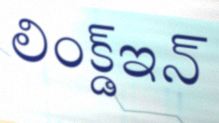
లింక్డ్ఇన్